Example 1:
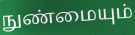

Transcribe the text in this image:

நுண்மையும்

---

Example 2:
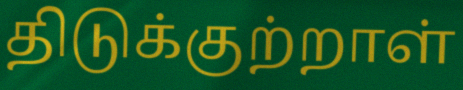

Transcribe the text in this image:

திடுக்குற்றாள்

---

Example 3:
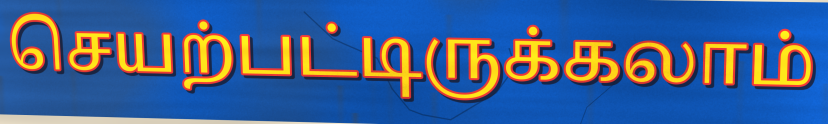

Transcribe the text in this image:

செயற்பட்டிருக்கலாம்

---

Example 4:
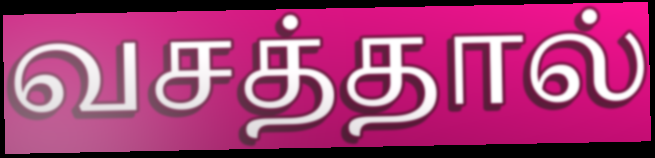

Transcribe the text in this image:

வசத்தால்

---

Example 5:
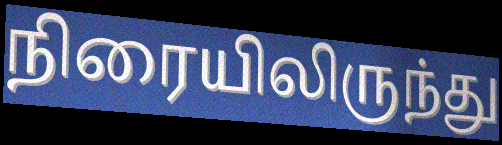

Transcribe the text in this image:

நிரையிலிருந்து